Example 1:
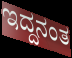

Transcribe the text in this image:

ಇದ್ದನಂತ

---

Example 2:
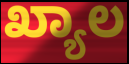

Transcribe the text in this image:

ಖ್ಯಾಲ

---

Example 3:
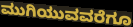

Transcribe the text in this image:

ಮುಗಿಯುವವರೆಗೂ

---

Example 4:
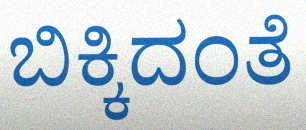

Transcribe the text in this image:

ಬಿಕ್ಕಿದಂತೆ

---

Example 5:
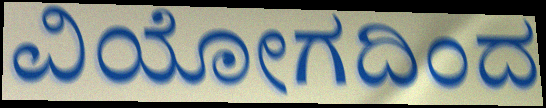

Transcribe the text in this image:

ವಿಯೋಗದಿಂದ